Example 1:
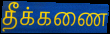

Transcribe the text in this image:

தீக்கணை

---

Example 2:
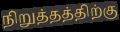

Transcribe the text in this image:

நிறுத்தத்திற்கு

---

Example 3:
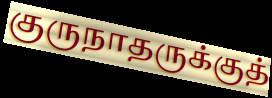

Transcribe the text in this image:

குருநாதருக்குத்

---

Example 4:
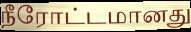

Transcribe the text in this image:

நீரோட்டமானது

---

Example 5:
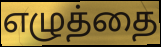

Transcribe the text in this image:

எழுத்தை